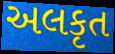
અલકૃત